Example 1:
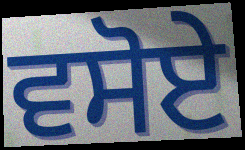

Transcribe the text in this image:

ਵਸੋਏ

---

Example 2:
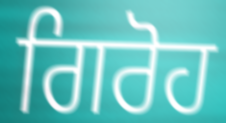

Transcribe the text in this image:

ਗਿਰੋਹ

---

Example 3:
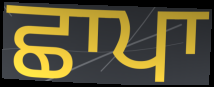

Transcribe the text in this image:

ਛਾਪਾ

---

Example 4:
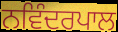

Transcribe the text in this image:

ਨਵਿੰਦਰਪਾਲ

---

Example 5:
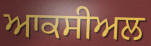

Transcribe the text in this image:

ਆਕਸੀਅਲ